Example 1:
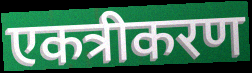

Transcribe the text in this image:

एकत्रीकरण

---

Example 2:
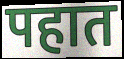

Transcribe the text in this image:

पहात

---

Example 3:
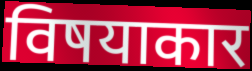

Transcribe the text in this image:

विषयाकार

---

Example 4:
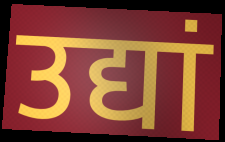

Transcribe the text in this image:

उद्यां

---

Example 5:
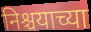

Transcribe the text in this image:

निश्चयाच्या